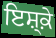
ਇਸ਼੍ਕ਼ੇ